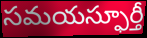
సమయస్ఫూర్తీ